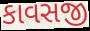
કાવસજી